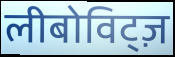
लीबोविट्ज़